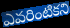
ఎవరింటికని